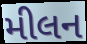
મીલન